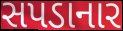
સપડાનાર